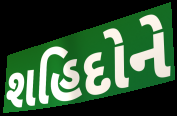
શહિદોને